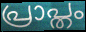
പ്രാപ്തം